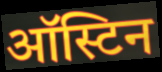
ऑस्टिन